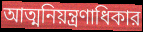
আত্মনিয়ন্ত্রণাধিকার